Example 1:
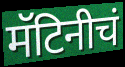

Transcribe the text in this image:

मॅटिनीचं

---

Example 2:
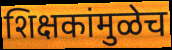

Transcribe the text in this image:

शिक्षकांमुळेच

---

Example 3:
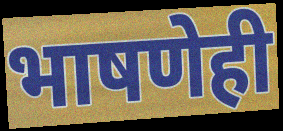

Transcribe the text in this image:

भाषणेही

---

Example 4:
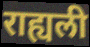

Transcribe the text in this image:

राह्यली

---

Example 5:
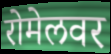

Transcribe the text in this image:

रोमेलवर